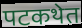
पटकथेत